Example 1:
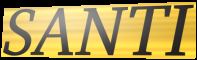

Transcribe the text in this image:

SANTI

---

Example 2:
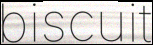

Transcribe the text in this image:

biscuit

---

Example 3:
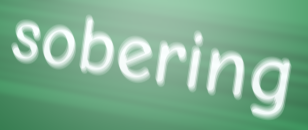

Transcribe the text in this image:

sobering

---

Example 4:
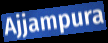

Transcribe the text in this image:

Ajjampura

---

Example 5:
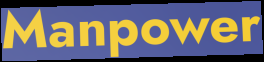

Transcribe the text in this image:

Manpower